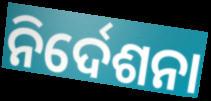
ନିର୍ଦେଶନା